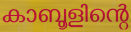
കാബൂളിന്റെ